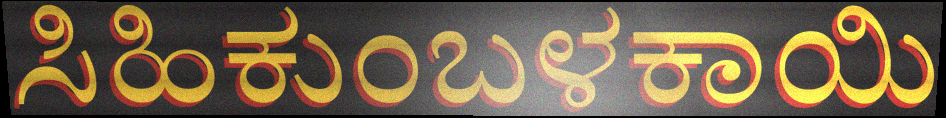
ಸಿಹಿಕುಂಬಳಕಾಯಿ